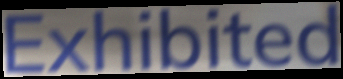
Exhibited